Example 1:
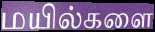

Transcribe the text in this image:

மயில்களை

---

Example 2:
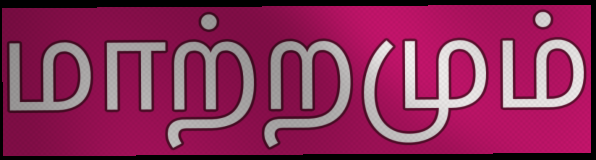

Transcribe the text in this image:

மாற்றமும்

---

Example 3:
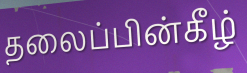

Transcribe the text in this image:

தலைப்பின்கீழ்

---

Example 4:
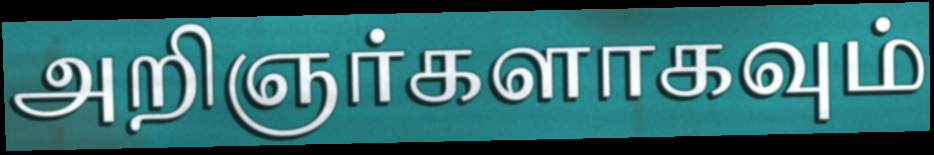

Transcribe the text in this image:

அறிஞர்களாகவும்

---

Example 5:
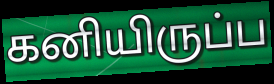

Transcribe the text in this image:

கனியிருப்ப